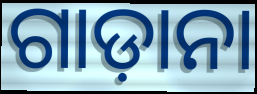
ଗାଡ଼ାନା